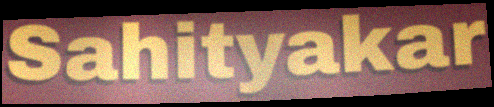
Sahityakar